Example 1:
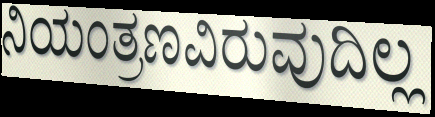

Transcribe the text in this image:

ನಿಯಂತ್ರಣವಿರುವುದಿಲ್ಲ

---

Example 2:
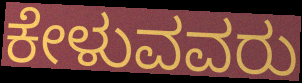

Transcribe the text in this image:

ಕೇಳುವವರು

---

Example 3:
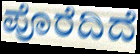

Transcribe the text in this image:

ಪೊರೆದಿದೆ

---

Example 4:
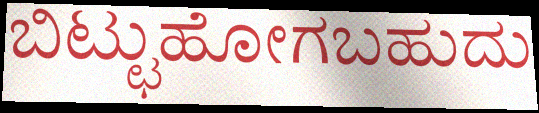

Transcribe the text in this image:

ಬಿಟ್ಟುಹೋಗಬಹುದು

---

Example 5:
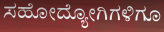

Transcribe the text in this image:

ಸಹೋದ್ಯೋಗಿಗಳಿಗೂ